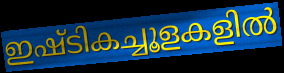
ഇഷ്ടികച്ചൂളകളിൽ